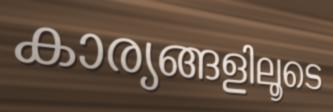
കാര്യങ്ങളിലൂടെ